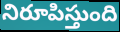
నిరూపిస్తుంది